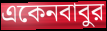
একেনবাবুর